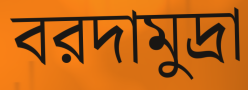
বরদামুদ্রা